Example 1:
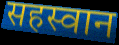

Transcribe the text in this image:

सहस्वान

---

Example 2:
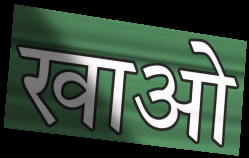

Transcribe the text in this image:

खाओ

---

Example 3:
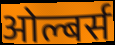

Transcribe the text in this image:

ओल्बर्स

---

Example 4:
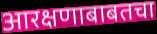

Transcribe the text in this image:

आरक्षणाबाबतचा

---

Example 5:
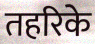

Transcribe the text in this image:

तहरिके